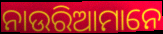
ନାଉରିଆମାନେ